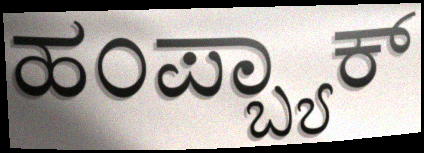
ಹಂಪ್ಬ್ಯಾಕ್